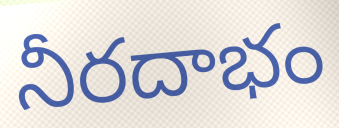
నీరదాభం